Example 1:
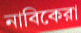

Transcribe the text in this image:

নাবিকেরা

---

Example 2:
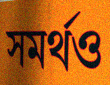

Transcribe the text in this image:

সমর্থও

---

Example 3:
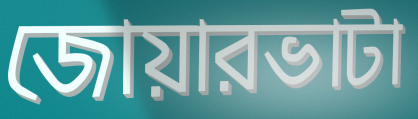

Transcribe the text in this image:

জোয়ারভাটা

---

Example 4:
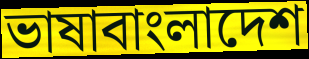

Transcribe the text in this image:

ভাষাবাংলাদেশ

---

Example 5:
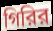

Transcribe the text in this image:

গিরির